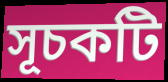
সূচকটি